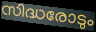
സിദ്ധരോടും